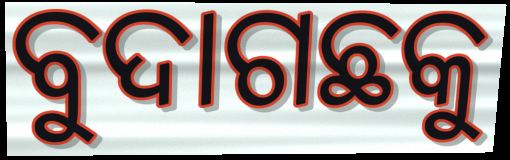
ବୁଦାଗଛକୁ